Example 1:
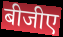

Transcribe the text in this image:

बीजीए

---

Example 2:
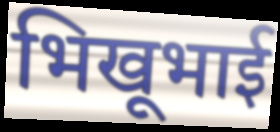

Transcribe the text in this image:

भिखूभाई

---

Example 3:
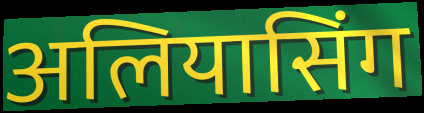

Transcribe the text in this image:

अलियासिंग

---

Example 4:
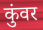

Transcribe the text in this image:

कुंवर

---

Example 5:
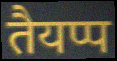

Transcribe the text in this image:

तैयप्प